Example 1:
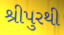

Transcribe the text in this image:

શ્રીપુરથી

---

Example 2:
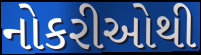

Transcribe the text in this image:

નોકરીઓથી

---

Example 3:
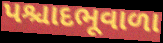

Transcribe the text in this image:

પશ્ચાદભૂવાળા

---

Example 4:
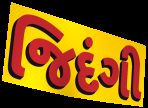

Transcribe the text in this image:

જિદંગી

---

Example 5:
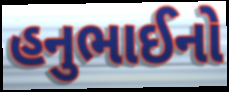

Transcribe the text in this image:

હનુભાઈનો